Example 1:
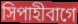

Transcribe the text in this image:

সিপাহীবাগে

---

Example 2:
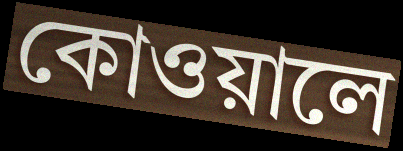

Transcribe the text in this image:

কোওয়ালে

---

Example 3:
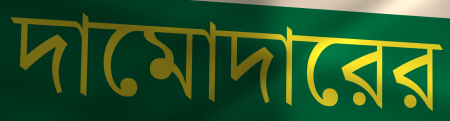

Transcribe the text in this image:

দামোদারের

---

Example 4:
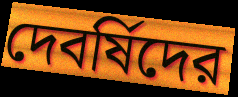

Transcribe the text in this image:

দেবর্ষিদের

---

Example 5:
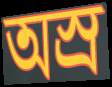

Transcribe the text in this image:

অস্র